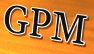
GPM